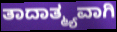
ತಾದಾತ್ಮ್ಯವಾಗಿ